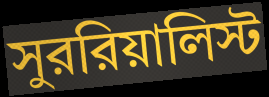
সুররিয়ালিস্ট